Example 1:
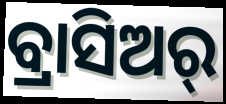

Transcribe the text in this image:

ବ୍ରାସିଅର୍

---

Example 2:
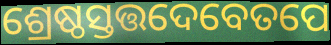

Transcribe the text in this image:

ଶ୍ରେଷ୍ଠସ୍ତତ୍ତଦେବେତପେ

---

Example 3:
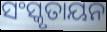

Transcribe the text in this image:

ସଂସ୍କୃତାୟନ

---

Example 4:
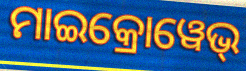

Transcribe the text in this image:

ମାଇକ୍ରୋୱେଭ୍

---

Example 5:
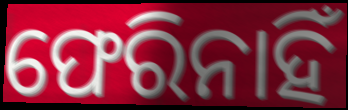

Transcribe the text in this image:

ଫେରିନାହିଁ